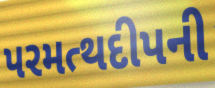
પરમત્થદીપની